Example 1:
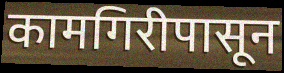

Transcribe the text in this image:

कामगिरीपासून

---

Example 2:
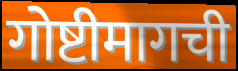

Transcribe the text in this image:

गोष्टीमागची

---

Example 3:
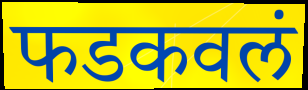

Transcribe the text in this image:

फडकवलं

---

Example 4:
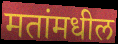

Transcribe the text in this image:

मतांमधील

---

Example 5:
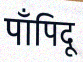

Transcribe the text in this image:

पाँपिदू